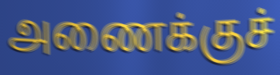
அணைக்குச்